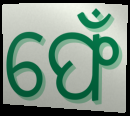
ଫେଁ